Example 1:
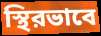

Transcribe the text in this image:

স্থিরভাবে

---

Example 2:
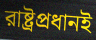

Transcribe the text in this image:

রাষ্ট্রপ্রধানই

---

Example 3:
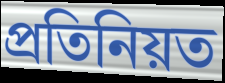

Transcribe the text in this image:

প্রতিনিয়ত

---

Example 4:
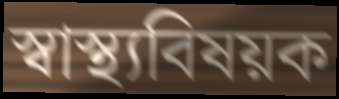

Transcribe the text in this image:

স্বাস্থ্যবিষয়ক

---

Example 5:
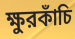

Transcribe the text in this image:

ক্ষুরকাঁচি